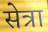
सेत्रा